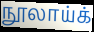
நூலாய்க்